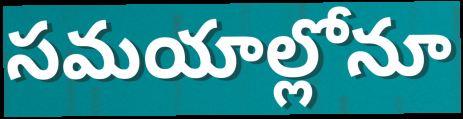
సమయాల్లోనూ